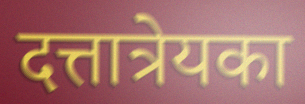
दत्तात्रेयका